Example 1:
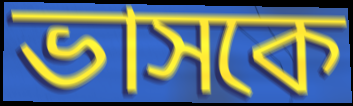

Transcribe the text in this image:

ভাসকে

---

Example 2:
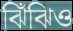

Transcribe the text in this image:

ঝিঁঝিও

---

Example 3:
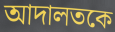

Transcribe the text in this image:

আদালতকে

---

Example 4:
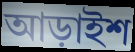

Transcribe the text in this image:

আড়াইশ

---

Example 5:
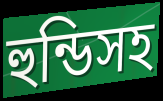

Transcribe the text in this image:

হুন্ডিসহ